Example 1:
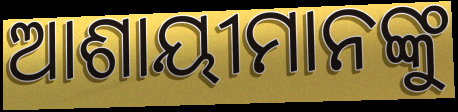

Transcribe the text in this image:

ଆଶାୟୀମାନଙ୍କୁ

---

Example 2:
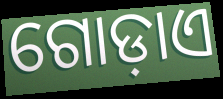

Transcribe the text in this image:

ଗୋଡ଼ାଏ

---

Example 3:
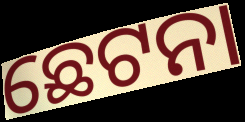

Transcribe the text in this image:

ଛେଟନା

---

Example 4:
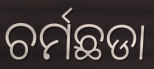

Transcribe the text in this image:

ଚର୍ମଛଡା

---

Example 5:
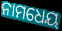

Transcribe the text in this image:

ନାମଧେୟ